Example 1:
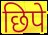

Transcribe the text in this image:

छिपे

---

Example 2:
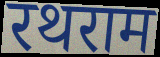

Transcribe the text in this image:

रथराम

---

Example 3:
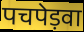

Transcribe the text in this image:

पचपेड़वा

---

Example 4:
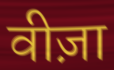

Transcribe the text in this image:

वीज़ा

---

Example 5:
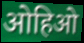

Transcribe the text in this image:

ओहिओ